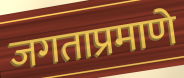
जगताप्रमाणे